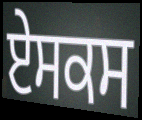
ਏਸਕਸ